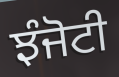
ਝੰਜੋਟੀ